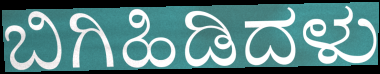
ಬಿಗಿಹಿಡಿದಳು